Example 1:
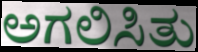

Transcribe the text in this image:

ಅಗಲಿಸಿತು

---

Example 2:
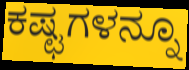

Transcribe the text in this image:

ಕಷ್ಟಗಳನ್ನೂ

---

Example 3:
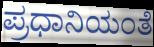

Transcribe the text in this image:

ಪ್ರಧಾನಿಯಂತೆ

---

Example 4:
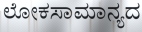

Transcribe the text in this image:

ಲೋಕಸಾಮಾನ್ಯದ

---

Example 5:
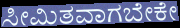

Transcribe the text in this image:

ಸೀಮಿತವಾಗಬೇಕೇ